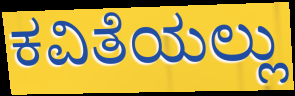
ಕವಿತೆಯಲ್ಲು